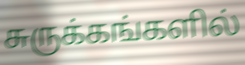
சுருக்கங்களில்